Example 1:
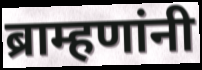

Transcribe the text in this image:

ब्राम्हणांनी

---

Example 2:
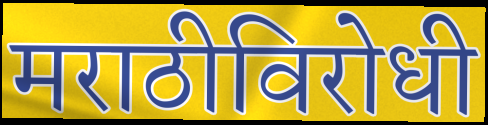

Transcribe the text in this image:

मराठीविरोधी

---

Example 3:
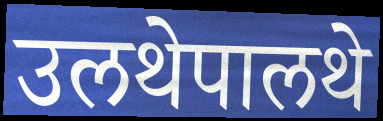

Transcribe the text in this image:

उलथेपालथे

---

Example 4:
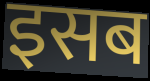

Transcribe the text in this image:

इसब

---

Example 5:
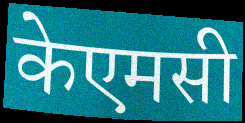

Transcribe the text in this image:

केएमसी